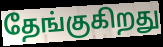
தேங்குகிறது